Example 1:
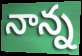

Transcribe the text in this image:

నాన్న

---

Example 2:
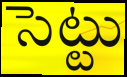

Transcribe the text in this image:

సెట్టు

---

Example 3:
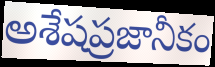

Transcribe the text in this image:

అశేషప్రజానీకం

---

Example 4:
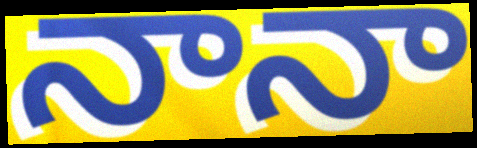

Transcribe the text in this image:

నానా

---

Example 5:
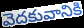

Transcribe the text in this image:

వెదకువానికి